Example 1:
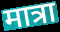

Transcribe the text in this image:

मात्रा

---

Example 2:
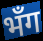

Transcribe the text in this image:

भँग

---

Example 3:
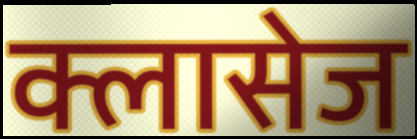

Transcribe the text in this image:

क्लासेज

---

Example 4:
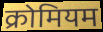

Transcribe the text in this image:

क्रोमियम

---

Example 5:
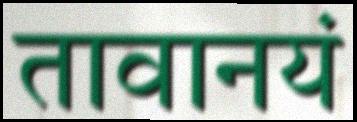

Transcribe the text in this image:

तावानयं